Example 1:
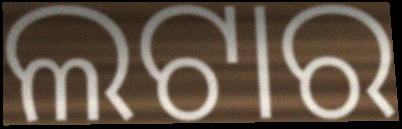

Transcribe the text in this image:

ଲଟାର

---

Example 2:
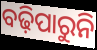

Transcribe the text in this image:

ବଢ଼ିପାରୁନି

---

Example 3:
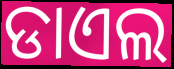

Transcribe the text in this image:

ଡାଏଲ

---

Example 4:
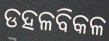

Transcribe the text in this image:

ଡହଳବିକଳ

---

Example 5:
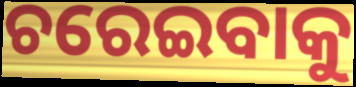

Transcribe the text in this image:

ଚରେଇବାକୁ